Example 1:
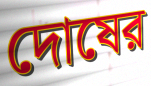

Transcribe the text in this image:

দোষের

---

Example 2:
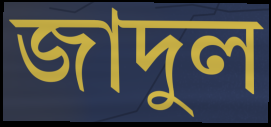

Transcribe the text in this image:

জাদুল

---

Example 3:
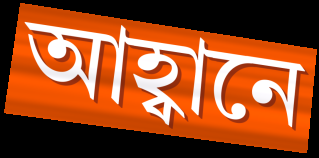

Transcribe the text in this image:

আহ্বানে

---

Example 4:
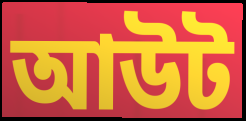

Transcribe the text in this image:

আউট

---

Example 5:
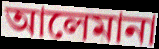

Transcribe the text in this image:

আলেমানা